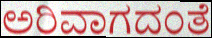
ಅರಿವಾಗದಂತೆ